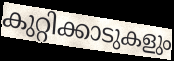
കുറ്റിക്കാടുകളും